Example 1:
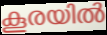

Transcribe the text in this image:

കൂരയിൽ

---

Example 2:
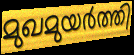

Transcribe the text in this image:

മുഖമുയർത്തി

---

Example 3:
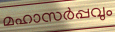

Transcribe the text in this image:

മഹാസർപ്പവും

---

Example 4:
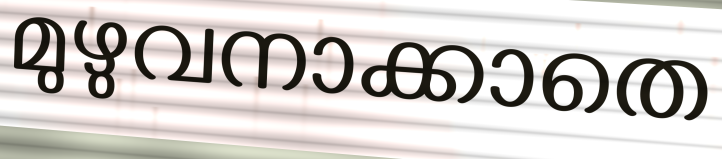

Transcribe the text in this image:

മുഴുവനാക്കാതെ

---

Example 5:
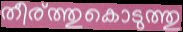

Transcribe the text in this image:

തീര്ത്തുകൊടുത്തു